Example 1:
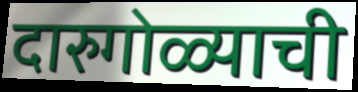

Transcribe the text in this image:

दारुगोळ्याची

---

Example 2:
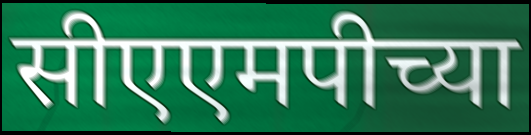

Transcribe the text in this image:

सीएएमपीच्या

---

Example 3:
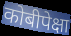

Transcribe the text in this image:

कोबीपेक्षा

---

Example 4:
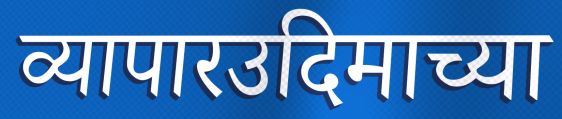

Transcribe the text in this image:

व्यापारउदिमाच्या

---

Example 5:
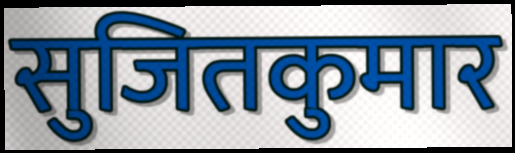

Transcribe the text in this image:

सुजितकुमार